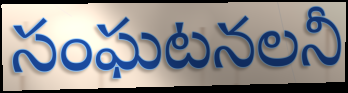
సంఘటనలనీ